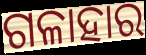
ଗଳାହାର